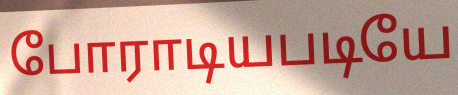
போராடியபடியே